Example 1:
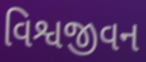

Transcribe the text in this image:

વિશ્વજીવન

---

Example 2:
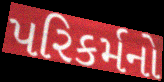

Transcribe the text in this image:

પરિકર્મનો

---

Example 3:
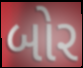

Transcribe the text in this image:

બોર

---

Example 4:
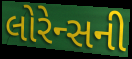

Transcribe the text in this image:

લોરેન્સની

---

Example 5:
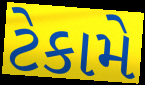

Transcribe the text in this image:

ટેકામે